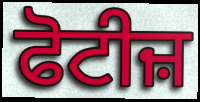
ਫੋਟੀਜ਼